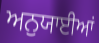
ਅਨੁਯਾਈਆਂ